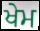
ਖੇਮ